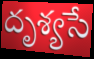
దృశ్యసే